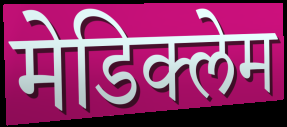
मेडिक्लेम